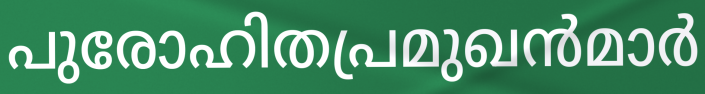
പുരോഹിതപ്രമുഖൻമാർ